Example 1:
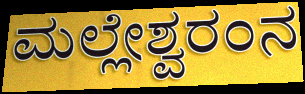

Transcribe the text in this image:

ಮಲ್ಲೇಶ್ವರಂನ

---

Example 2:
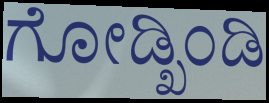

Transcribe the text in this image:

ಗೋಡ್ಖಿಂಡಿ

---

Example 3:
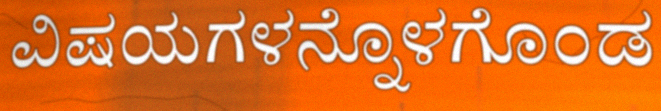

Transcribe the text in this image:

ವಿಷಯಗಳನ್ನೊಳಗೊಂಡ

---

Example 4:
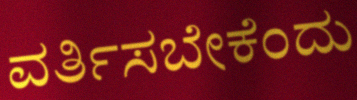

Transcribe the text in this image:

ವರ್ತಿಸಬೇಕೆಂದು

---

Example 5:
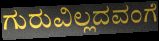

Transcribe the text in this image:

ಗುರುವಿಲ್ಲದವಂಗೆ